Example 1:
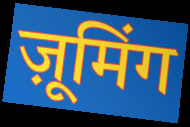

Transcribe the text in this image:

ज़ूमिंग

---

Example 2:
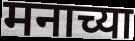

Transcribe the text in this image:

मनाच्या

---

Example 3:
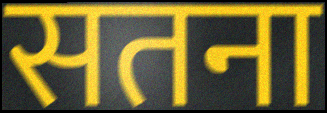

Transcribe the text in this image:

सतना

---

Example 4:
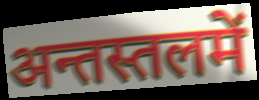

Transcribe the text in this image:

अन्तस्तलमें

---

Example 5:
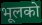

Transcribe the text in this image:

भूलको